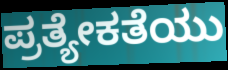
ಪ್ರತ್ಯೇಕತೆಯು